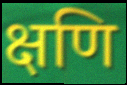
क्षणि